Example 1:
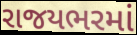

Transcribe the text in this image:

રાજયભરમાં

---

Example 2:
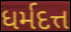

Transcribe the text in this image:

ધર્મદત્ત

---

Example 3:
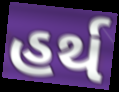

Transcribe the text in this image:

હર્થ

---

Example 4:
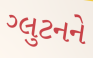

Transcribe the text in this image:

ગ્લુટનને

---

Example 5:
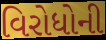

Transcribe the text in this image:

વિરોધોની